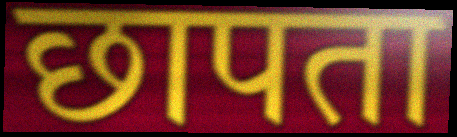
छापता